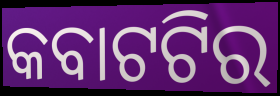
କବାଟଟିର